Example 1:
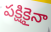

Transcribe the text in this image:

పక్షికైనా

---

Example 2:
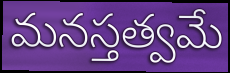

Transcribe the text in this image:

మనస్తత్వమే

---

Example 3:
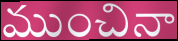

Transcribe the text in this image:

ముంచినా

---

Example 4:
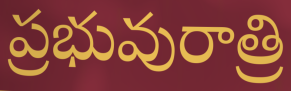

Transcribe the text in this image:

ప్రభువురాత్రి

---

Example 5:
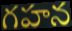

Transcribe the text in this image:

గహన